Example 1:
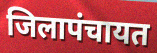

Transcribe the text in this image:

जिलापंचायत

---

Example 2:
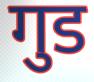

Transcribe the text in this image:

गुड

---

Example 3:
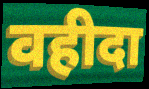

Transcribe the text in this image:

वहीदा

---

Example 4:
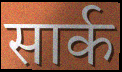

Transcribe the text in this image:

सार्क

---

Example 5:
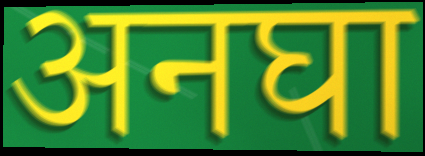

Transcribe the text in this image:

अनघा